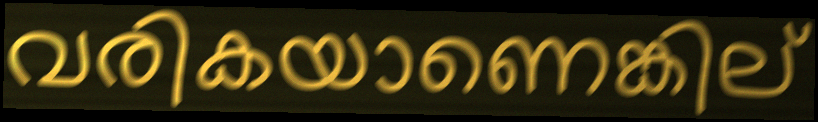
വരികയാണെങ്കില്